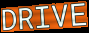
DRIVE